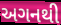
અગનથી